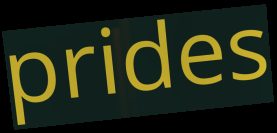
prides